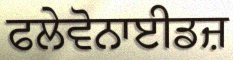
ਫਲੇਵੋਨਾਈਡਜ਼